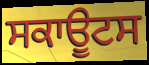
ਸਕਾਊਟਸ